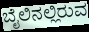
ಬೈಲಿನಲ್ಲಿರುವ